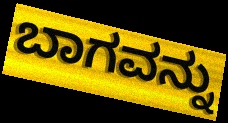
ಬಾಗವನ್ನು